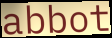
abbot